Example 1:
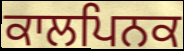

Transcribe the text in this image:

ਕਾਲਪਿਨਕ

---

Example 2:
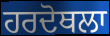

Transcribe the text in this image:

ਹਰਦੋਥਲਾ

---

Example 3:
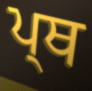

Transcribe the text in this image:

ਪ੍ਥ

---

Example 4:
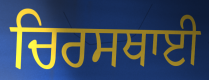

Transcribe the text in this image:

ਚਿਰਸਥਾਈ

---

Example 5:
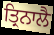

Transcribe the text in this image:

ਤ੍ਰਿਨਾਲੈ